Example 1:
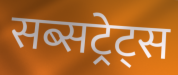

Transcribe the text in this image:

सब्सट्रेट्स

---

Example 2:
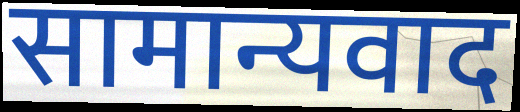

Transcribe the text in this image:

सामान्यवाद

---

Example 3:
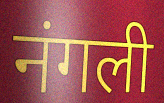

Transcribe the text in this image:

नंगली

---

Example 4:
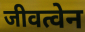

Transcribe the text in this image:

जीवत्वेन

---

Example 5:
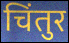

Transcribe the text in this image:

चिंतुर